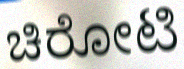
ಚಿರೋಟಿ